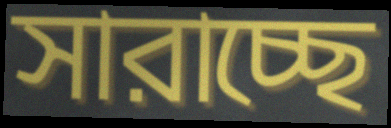
সারাচ্ছে